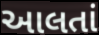
આલતાં